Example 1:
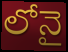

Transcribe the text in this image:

లోనై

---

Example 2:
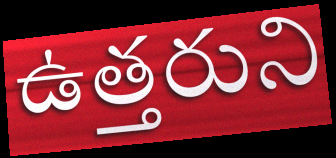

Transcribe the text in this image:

ఉత్తరుని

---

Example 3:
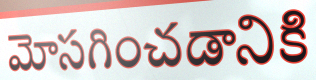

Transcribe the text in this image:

మోసగించడానికి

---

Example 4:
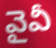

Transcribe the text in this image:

వైవీ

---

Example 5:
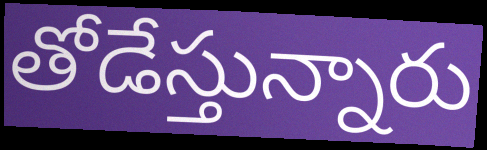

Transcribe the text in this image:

తోడేస్తున్నారు